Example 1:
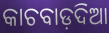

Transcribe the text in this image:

କାଚବାଡ଼ଦିଆ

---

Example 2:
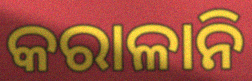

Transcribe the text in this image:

କରାଳାନି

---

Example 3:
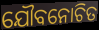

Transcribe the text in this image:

ଯୌବନୋଚିତ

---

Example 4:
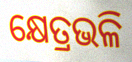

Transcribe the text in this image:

କ୍ଷେତ୍ରଭଳି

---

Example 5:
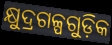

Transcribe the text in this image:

କ୍ଷୁଦ୍ରଗଳ୍ପଗୁଡ଼ିକ